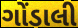
ગોંડાલી